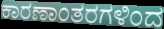
ಕಾರಣಾಂತರಗಳಿಂದ